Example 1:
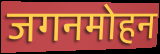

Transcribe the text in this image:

जगनमोहन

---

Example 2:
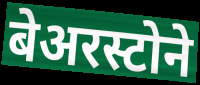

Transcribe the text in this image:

बेअरस्टोने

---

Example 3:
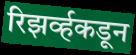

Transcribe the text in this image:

रिझर्व्हकडून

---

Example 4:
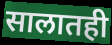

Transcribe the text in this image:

सालातही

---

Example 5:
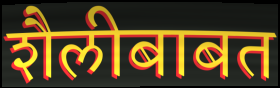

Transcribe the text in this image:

शैलीबाबत